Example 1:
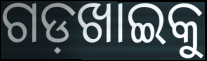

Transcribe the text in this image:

ଗଡ଼ଖାଇକୁ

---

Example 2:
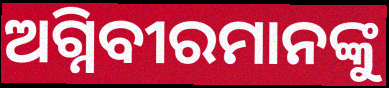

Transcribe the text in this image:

ଅଗ୍ନିବୀରମାନଙ୍କୁ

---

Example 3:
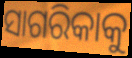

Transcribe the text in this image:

ସାଗରିକାକୁ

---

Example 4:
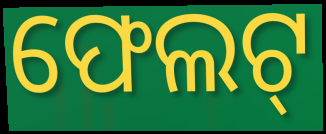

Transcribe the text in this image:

ଫେଲଟ୍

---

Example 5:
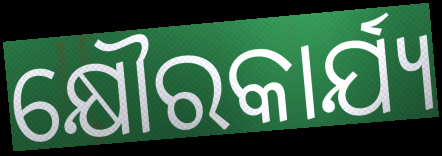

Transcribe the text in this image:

କ୍ଷୌରକାର୍ଯ୍ୟ